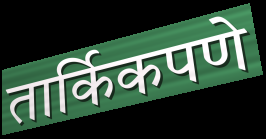
तार्किकपणे